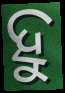
ହୁ